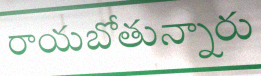
రాయబోతున్నారు